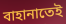
বাহানাতেই